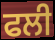
ਫਲੀ